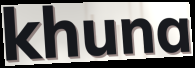
khuna